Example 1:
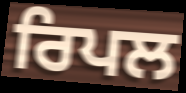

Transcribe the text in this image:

ਰਿਪਲ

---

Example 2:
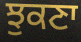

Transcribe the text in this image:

ਝੁਕਣਾ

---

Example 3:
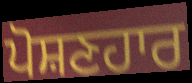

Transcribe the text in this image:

ਪੋਸ਼ਣਹਾਰ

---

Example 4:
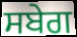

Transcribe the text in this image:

ਸਬੇਗ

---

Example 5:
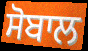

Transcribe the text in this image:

ਸੋਬਾਲ